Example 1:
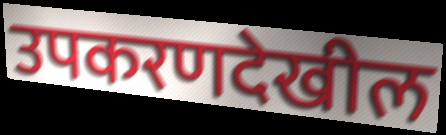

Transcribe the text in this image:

उपकरणदेखील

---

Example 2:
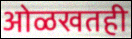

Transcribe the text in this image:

ओळखतही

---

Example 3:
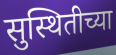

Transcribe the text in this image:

सुस्थितीच्या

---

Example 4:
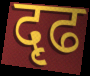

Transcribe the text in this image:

दृढ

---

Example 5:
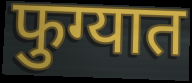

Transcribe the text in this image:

फुग्यात